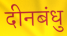
दीनबंधु